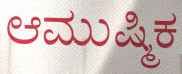
ಆಮುಷ್ಮಿಕ